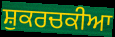
ਸ਼ੁਕਰਚਕੀਆ